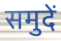
समुदें